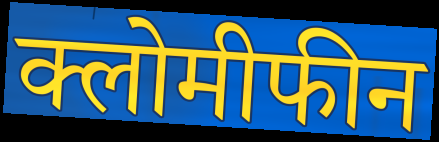
क्लोमीफीन